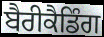
ਬੈਰੀਕੈਡਿੰਗ